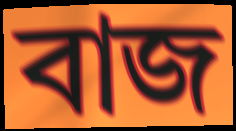
বাজ